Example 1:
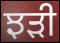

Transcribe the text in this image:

ਝੜੀ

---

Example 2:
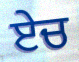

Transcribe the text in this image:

ਏਚ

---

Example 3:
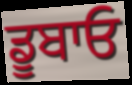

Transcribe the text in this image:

ਡੂਬਾਓ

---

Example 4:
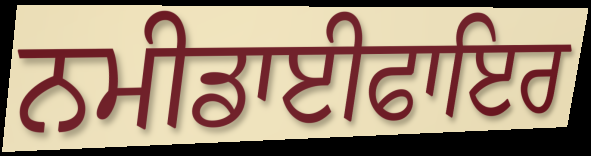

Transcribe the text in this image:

ਨਮੀਡਾਈਫਾਇਰ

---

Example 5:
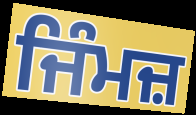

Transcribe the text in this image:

ਜਿੰਮਜ਼